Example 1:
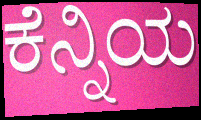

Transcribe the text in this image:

ಕೆನ್ನಿಯ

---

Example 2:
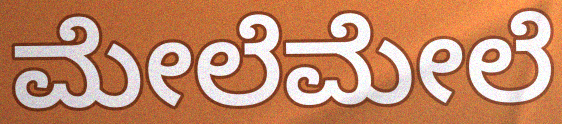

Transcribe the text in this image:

ಮೇಲೆಮೇಲೆ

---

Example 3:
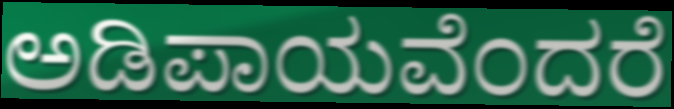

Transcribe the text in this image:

ಅಡಿಪಾಯವೆಂದರೆ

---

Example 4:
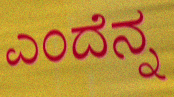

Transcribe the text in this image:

ಎಂದೆನ್ನ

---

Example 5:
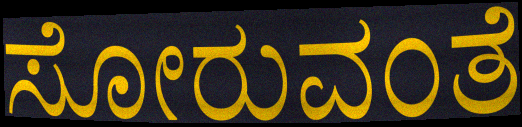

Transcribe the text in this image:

ಸೋರುವಂತೆ